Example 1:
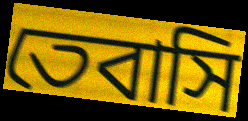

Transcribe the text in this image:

তেবাসি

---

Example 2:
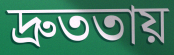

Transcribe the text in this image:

দ্রুততায়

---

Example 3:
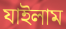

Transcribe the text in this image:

যাইলাম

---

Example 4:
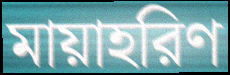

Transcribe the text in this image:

মায়াহরিণ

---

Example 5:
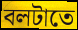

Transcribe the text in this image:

বলটাতে